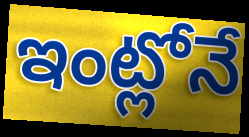
ఇంట్లోనే